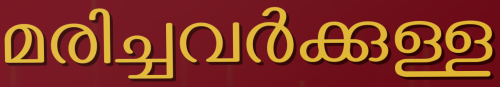
മരിച്ചവർക്കുള്ള